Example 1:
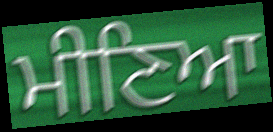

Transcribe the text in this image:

ਮੀਣਿਆ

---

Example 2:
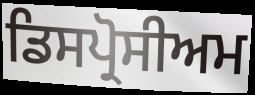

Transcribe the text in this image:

ਡਿਸਪ੍ਰੋਸੀਅਮ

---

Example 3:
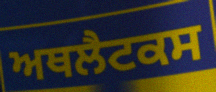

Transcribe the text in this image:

ਅਥਲੈਟਕਸ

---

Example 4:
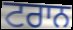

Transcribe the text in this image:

ਟਰਾਨ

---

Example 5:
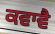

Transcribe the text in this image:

ਕਵਾਵੈ